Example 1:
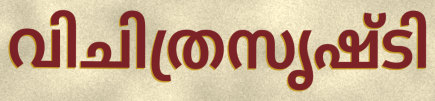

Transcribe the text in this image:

വിചിത്രസൃഷ്ടി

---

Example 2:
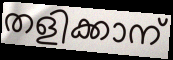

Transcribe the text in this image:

തളിക്കാന്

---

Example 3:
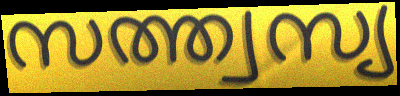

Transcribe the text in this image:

സത്ത്വസ്യ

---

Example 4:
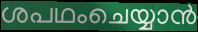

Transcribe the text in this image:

ശപഥംചെയ്യാൻ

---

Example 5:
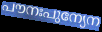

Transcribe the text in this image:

പൗനഃപുന്യേന